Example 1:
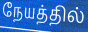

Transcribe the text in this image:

நேயத்தில்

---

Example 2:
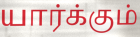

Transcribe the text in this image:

யார்க்கும்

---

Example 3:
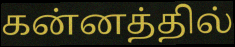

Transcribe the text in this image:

கன்னத்தில்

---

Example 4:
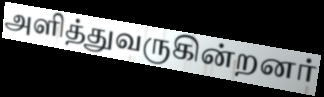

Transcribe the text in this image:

அளித்துவருகின்றனர்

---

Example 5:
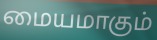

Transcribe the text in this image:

மையமாகும்